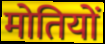
मोतियों